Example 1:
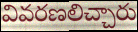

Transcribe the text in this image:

వివరణలిచ్చారు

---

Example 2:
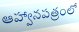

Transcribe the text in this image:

ఆహ్వానపత్రంలో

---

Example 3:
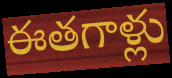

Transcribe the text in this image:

ఈతగాళ్లు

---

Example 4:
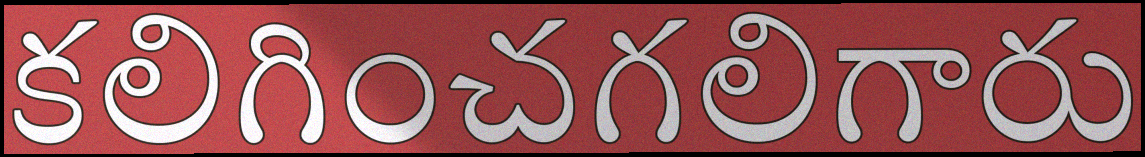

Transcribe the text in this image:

కలిగించగలిగారు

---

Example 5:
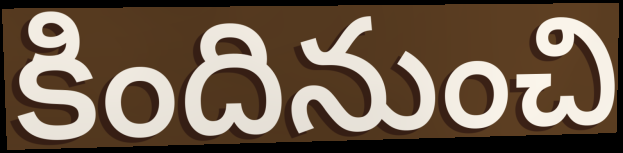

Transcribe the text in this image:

కిందినుంచి